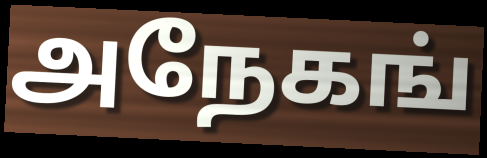
அநேகங்